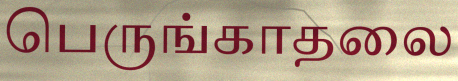
பெருங்காதலை